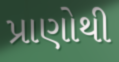
પ્રાણોથી